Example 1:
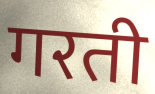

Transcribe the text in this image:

गरती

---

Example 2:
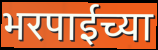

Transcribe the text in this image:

भरपाईच्या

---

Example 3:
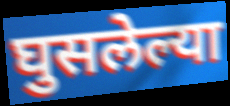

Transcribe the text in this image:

घुसलेल्या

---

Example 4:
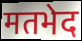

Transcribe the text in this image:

मतभेद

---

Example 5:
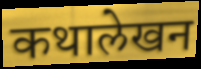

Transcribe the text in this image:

कथालेखन